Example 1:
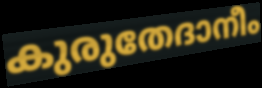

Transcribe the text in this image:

കുരുതേദാനീം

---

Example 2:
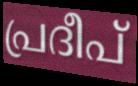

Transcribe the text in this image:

പ്രദീപ്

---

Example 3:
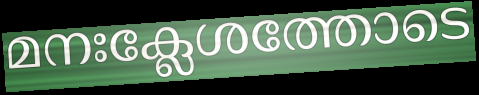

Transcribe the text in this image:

മനഃക്ലേശത്തോടെ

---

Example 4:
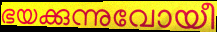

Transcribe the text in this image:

ഭയക്കുന്നുവോയീ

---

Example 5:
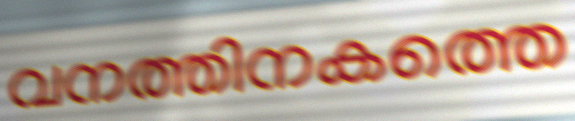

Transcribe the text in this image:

വനത്തിനകത്തെ